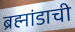
ब्रह्मांडाची